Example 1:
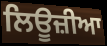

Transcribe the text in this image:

ਲਿਊਜ਼ੀਆ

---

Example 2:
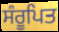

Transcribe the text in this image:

ਸੰਰੂਪਿਤ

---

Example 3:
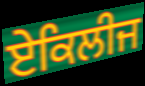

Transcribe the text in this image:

ਏਕਿਲੀਜ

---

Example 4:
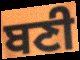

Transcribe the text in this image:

ਬਣੀ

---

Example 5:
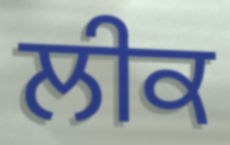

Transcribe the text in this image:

ਲੀਕ